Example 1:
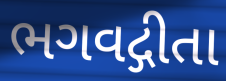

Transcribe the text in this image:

ભગવદ્ગીતા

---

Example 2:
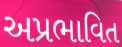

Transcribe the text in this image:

અપ્રભાવિત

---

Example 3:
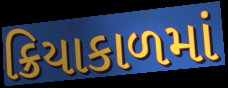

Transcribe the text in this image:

ક્રિયાકાળમાં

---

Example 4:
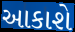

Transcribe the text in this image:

આકાશે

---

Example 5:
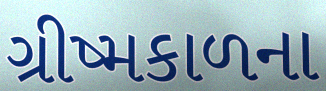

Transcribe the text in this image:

ગ્રીષ્મકાળના